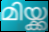
മിയ്ക്ക